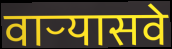
वाऱ्यासवे